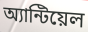
অ্যান্টিয়েল